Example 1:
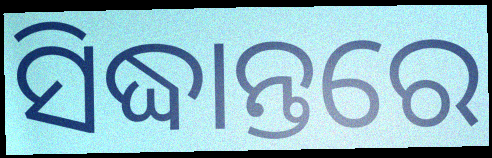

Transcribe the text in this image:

ସିଦ୍ଧାନ୍ତରେ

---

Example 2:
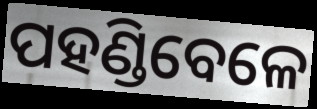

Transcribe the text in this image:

ପହଣ୍ଡିବେଳେ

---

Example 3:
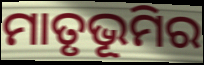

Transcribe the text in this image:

ମାତୃଭୂମିର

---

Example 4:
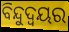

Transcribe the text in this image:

ବିନ୍ଦୁଦ୍ବୟର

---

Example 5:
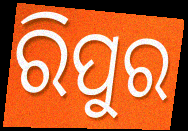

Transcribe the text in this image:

ରିପୁର